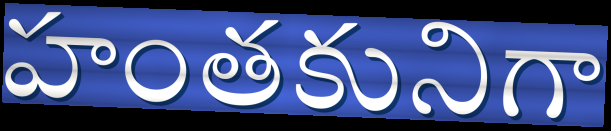
హంతకునిగా